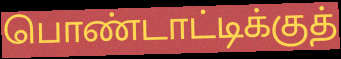
பொண்டாட்டிக்குத்